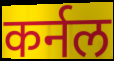
कर्नल